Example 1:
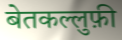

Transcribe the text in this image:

बेतकल्लुफ़ी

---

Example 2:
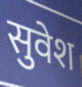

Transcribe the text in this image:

सुवेश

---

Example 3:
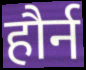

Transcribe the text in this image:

हौर्न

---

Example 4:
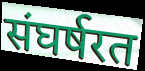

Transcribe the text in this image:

संघर्षरत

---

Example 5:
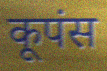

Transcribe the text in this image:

कूपंस